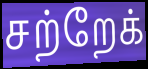
சற்றேக்